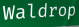
Waldrop